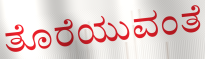
ತೊರೆಯುವಂತೆ